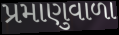
પ્રમાણુવાળા